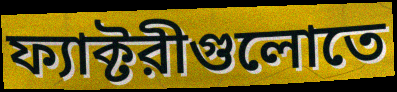
ফ্যাক্টরীগুলোতে